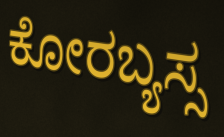
ಕೋರಬ್ಯಸ್ಸ